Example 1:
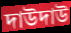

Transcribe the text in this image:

দাউদাউ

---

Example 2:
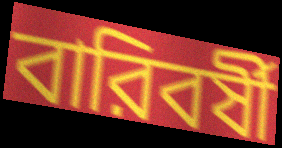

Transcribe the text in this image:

বারিবর্ষী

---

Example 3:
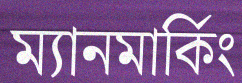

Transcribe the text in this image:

ম্যানমার্কিং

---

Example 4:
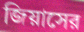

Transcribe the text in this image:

জিয়াসের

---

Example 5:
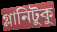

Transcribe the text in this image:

গ্লানিটুকু